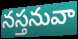
నస్తనువా